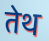
तेथ